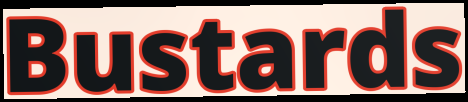
Bustards